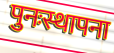
पुनःस्थापना